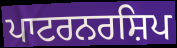
ਪਾਟਰਨਰਸ਼ਿਪ